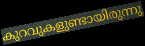
കുറവുകളുണ്ടായിരുന്നു